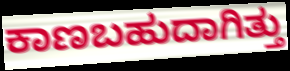
ಕಾಣಬಹುದಾಗಿತ್ತು